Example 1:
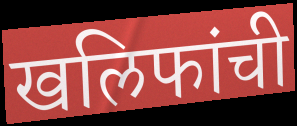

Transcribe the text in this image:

खलिफांची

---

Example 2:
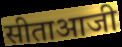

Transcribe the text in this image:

सीताआजी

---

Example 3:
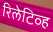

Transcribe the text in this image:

रिलेटिव्ह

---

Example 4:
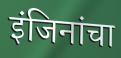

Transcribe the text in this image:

इंजिनांचा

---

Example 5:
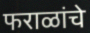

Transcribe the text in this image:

फराळांचे